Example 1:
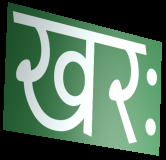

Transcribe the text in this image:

खरः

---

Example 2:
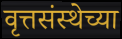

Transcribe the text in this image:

वृत्तसंस्थेच्या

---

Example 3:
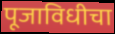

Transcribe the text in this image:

पूजाविधीचा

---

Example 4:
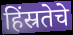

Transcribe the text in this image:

हिंस्रतेचे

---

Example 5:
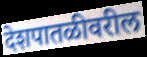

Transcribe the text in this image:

देशपातळीवरील